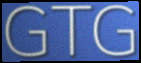
GTG